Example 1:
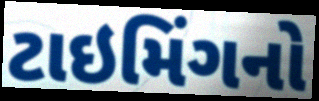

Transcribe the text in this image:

ટાઇમિંગનો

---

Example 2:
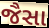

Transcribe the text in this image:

જૈસા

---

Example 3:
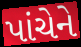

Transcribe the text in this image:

પાંચેને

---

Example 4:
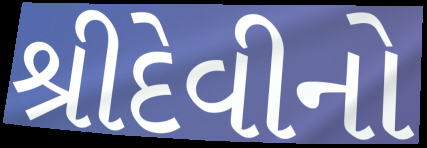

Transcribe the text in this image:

શ્રીદેવીનો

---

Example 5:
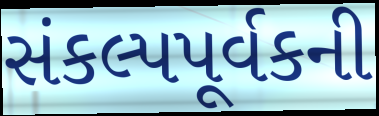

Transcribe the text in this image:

સંકલ્પપૂર્વકની